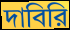
দাবিরি